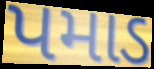
પમાડ